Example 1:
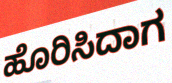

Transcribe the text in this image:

ಹೊರಿಸಿದಾಗ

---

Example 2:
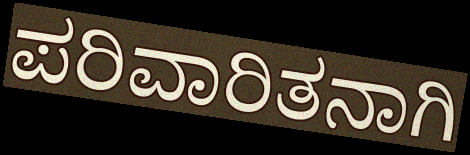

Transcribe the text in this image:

ಪರಿವಾರಿತನಾಗಿ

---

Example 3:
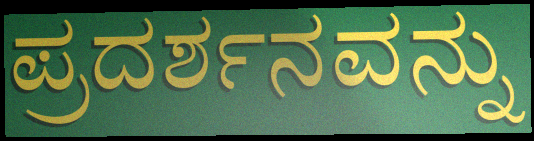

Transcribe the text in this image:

ಪ್ರದರ್ಶನವನ್ನು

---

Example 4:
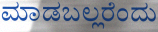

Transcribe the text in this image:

ಮಾಡಬಲ್ಲರೆಂದು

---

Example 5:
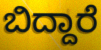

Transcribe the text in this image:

ಬಿದ್ದಾರೆ